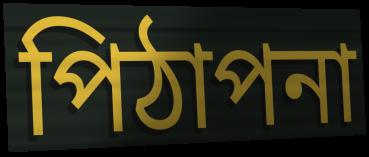
পিঠাপনা